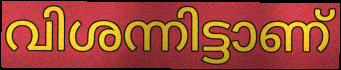
വിശന്നിട്ടാണ്